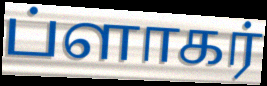
ப்ளாகர்